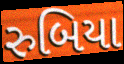
રુબિયા